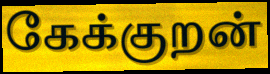
கேக்குறன்